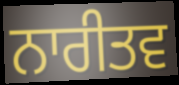
ਨਾਰੀਤਵ